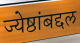
ज्येष्ठांबद्दल